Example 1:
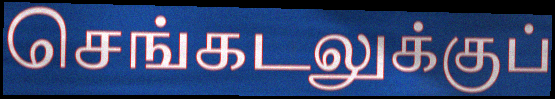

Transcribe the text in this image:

செங்கடலுக்குப்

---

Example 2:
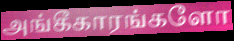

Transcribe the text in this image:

அங்கீகாரங்களோ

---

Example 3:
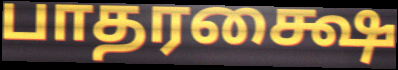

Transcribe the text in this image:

பாதரக்ஷை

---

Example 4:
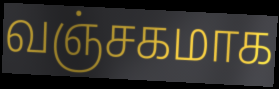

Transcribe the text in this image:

வஞ்சகமாக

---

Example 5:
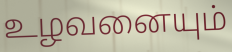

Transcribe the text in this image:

உழவனையும்